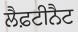
ਲੈਫ਼ਟੀਨੈਟ